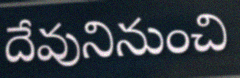
దేవునినుంచి